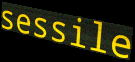
sessile